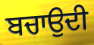
ਬਚਾਉਦੀ